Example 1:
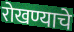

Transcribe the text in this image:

रोखण्याचे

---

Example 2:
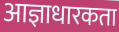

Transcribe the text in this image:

आज्ञाधारकता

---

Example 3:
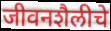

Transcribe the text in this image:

जीवनशैलीचे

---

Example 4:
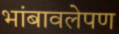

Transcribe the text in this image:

भांबावलेपण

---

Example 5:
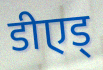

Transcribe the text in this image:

डीएड्